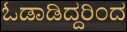
ಓಡಾಡಿದ್ದರಿಂದ